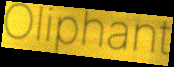
Oliphant